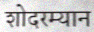
शोदरम्यान